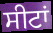
ਸੀਟਾਂ